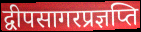
द्वीपसागरप्रज्ञप्ति